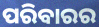
ପରିବାରର